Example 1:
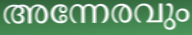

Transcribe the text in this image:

അന്നേരവും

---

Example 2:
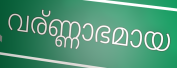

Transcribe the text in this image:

വര്ണ്ണാഭമായ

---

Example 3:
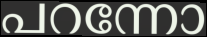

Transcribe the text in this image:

പറന്നോ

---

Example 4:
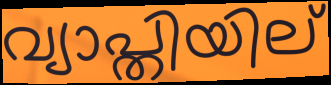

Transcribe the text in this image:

വ്യാപ്തിയില്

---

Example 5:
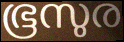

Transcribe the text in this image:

ഭൂസുര